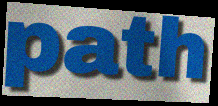
path